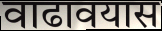
वाढावयास